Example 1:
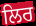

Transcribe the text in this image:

ਲਿਰ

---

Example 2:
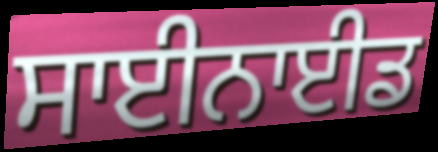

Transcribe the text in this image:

ਸਾਈਨਾਈਡ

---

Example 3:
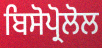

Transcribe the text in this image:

ਬਿਸੋਪ੍ਰੋਲੋਲ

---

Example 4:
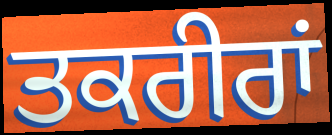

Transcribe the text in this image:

ਤਕਰੀਰਾਂ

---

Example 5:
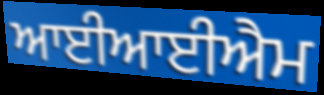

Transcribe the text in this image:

ਆਈਆਈਐਮ